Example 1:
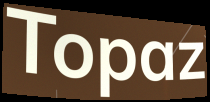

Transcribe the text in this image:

Topaz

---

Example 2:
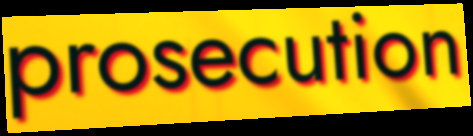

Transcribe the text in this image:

prosecution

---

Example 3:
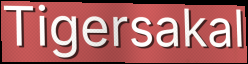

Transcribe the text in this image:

Tigersakal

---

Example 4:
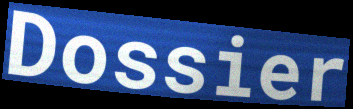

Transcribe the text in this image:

Dossier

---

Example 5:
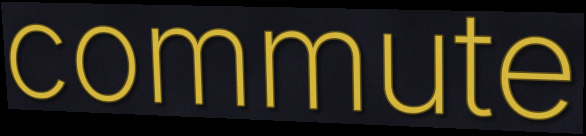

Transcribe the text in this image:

commute